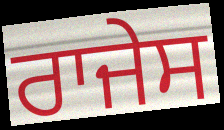
ਰਾਜੇਸ